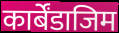
कार्बेंडाजिम